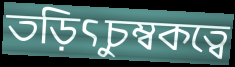
তড়িৎচুম্বকত্বে